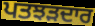
ਪਤਝੜਦਾਰ